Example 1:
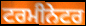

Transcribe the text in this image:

ਟਰਮੀਨੇਟਰ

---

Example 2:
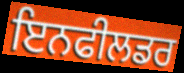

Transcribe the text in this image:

ਇਨਫੀਲਡਰ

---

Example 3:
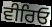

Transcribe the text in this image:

ਵੀਰਿਓ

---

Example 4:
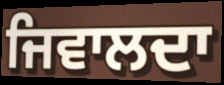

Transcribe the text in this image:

ਜਿਵਾਲਦਾ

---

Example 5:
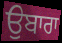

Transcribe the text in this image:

ਉਬਾਰਾ